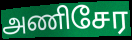
அணிசேர